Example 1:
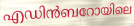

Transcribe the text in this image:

എഡിൻബറോയിലെ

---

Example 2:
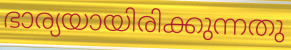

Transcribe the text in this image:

ഭാര്യയായിരിക്കുന്നതു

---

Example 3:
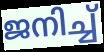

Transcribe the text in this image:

ജനിച്ച്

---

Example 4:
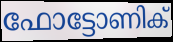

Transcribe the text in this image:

ഫോട്ടോണിക്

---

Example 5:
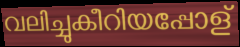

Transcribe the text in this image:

വലിച്ചുകീറിയപ്പോള്